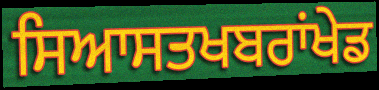
ਸਿਆਸਤਖਬਰਾਂਖੇਡ